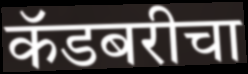
कॅडबरीचा